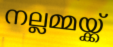
നല്ലമ്മയ്ക്ക്